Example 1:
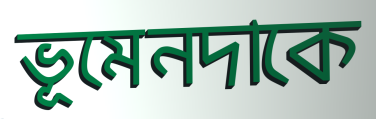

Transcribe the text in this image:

ভূমেনদাকে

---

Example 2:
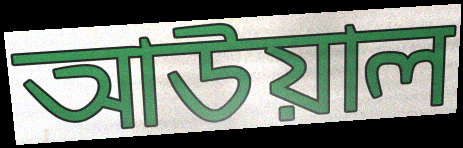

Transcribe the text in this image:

আউয়াল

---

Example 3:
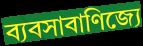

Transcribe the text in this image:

ব্যবসাবাণিজ্যে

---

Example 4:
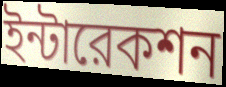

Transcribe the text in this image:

ইন্টারেকশন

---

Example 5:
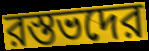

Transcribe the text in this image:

রস্তভদের